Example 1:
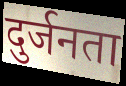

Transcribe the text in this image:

दुर्जनता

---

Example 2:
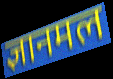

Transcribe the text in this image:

ज्ञानमल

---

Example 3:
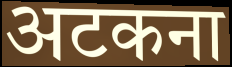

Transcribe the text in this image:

अटकना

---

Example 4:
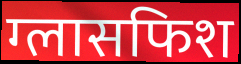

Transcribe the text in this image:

ग्लासफिश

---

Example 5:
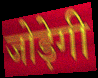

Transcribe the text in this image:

जोड़ेगी